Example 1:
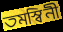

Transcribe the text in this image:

তমস্বিনী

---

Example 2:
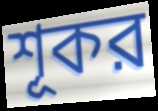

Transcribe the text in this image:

শূকর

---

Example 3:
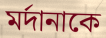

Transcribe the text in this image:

মর্দানাকে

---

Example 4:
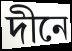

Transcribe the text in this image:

দীনে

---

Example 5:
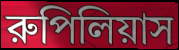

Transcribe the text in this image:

রুপিলিয়াস